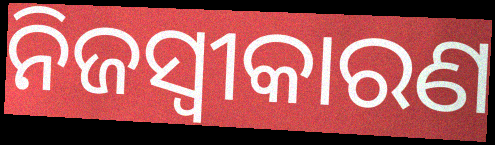
ନିଜସ୍ବୀକାରଣ